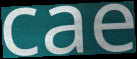
cae